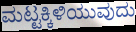
ಮಟ್ಟಕ್ಕಿಳಿಯುವುದು